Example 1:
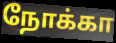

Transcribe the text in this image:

நோக்கா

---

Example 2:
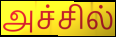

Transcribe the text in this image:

அச்சில்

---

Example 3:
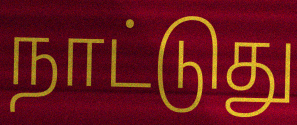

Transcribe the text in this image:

நாட்டுது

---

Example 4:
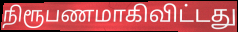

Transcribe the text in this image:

நிரூபணமாகிவிட்டது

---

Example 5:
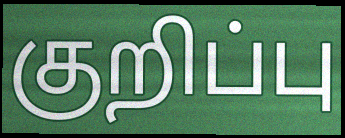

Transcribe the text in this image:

குறிப்பு